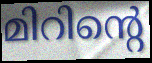
മിറിന്റെ